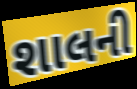
શાલની